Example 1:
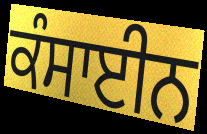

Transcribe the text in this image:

ਕੰਸਾਈਨ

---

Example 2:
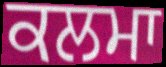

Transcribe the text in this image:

ਕਲਮਾ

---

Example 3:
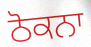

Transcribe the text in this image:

ਠੋਕਨਾ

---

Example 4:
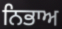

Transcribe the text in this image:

ਨਿਭਾਅ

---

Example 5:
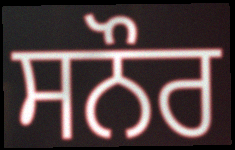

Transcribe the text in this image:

ਸਨੌਰ